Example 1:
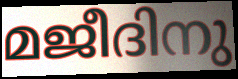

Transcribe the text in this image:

മജീദിനു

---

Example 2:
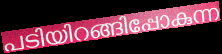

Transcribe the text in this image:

പടിയിറങ്ങിപ്പോകുന്ന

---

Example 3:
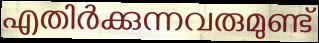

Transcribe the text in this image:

എതിർക്കുന്നവരുമുണ്ട്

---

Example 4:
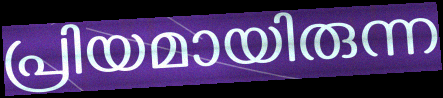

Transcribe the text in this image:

പ്രിയമായിരുന്ന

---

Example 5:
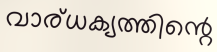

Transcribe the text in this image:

വാര്ധക്യത്തിന്റെ